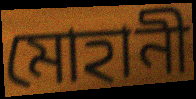
মোহানী